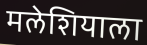
मलेशियाला